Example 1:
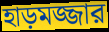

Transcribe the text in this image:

হাড়মজ্জার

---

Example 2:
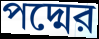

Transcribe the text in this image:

পদ্মের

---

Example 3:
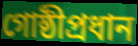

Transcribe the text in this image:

গোষ্ঠীপ্রধান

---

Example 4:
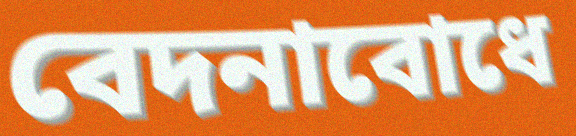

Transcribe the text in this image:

বেদনাবোধে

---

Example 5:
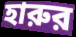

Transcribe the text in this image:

হারুর